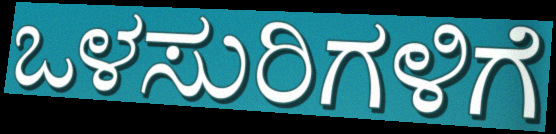
ಒಳಸುರಿಗಳಿಗೆ